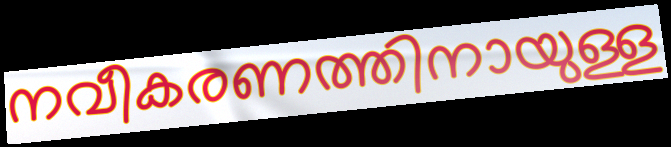
നവീകരണത്തിനായുള്ള